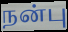
நன்பு